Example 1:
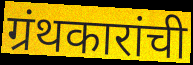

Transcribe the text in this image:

ग्रंथकारांची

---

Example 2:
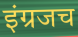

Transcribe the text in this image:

इंग्रजच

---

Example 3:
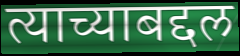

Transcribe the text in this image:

त्याच्याबद्दल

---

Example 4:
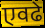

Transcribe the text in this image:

एवढे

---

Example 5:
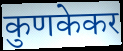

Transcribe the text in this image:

कुणकेकर